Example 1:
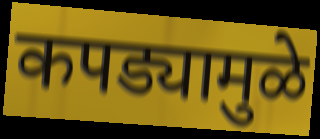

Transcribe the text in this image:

कपड्यामुळे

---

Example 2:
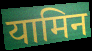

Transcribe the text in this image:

यामिन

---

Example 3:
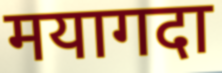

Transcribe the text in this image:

मयागदा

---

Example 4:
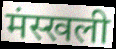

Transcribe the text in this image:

मंस्खली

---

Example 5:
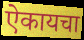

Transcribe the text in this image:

ऐकायचा